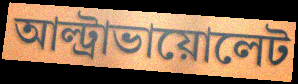
আল্ট্রাভায়োলেট